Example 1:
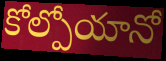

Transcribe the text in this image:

కోల్పోయానో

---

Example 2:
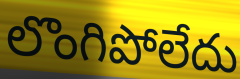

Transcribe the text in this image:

లొంగిపోలేదు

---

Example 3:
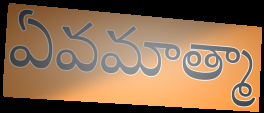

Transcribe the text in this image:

ఏవమాత్మా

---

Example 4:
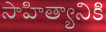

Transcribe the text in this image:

సాహిత్యానికి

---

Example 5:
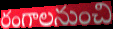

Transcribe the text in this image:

రంగాలనుంచి